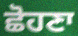
ਛੋਹਣਾ